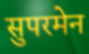
सुपरमेन